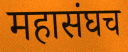
महासंघच